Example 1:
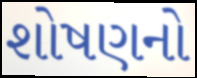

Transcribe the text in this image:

શોષણનો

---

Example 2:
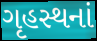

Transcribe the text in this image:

ગૃહસ્થનાં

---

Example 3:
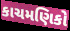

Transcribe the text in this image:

કાચમણિકો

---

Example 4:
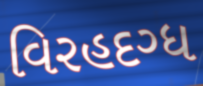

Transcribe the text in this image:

વિરહદગ્ધ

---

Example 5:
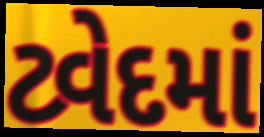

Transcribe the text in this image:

ટ્વેદમાં